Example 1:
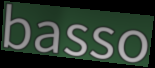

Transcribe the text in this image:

basso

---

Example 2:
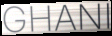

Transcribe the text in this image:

GHANI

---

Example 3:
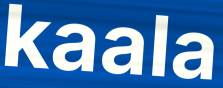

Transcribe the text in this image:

kaala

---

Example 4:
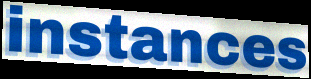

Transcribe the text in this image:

instances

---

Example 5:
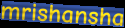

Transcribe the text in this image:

mrishansha